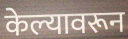
केल्यावरून